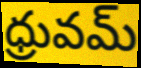
ధ్రువమ్